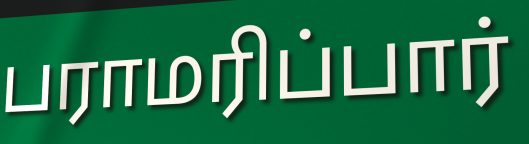
பராமரிப்பார்